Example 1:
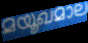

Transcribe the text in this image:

മയൂഖമാല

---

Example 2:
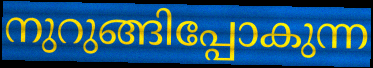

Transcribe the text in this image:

നുറുങ്ങിപ്പോകുന്ന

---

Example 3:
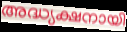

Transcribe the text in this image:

അദ്ധ്യക്ഷനായി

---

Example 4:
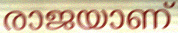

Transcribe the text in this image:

രാജയാണ്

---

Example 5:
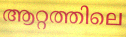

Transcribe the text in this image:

ആറ്റത്തിലെ